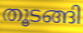
തൂടങ്ങി